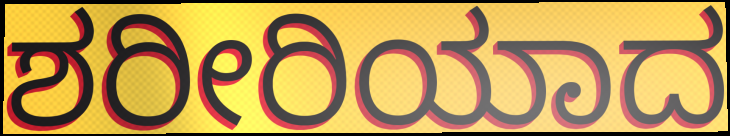
ಶರೀರಿಯಾದ